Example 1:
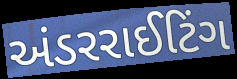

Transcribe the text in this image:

અંડરરાઈટિંગ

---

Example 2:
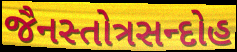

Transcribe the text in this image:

જૈનસ્તોત્રસન્દોહ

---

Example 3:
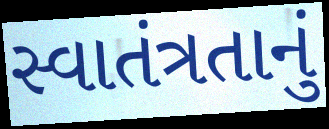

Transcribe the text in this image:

સ્વાતંત્રતાનું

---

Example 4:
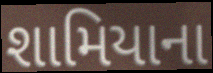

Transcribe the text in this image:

શામિયાના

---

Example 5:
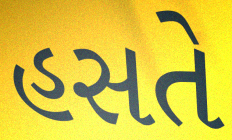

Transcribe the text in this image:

હસતે